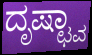
ದೃಷ್ಟ್ವಾ